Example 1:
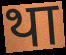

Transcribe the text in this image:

था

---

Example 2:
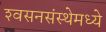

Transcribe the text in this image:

श्वसनसंस्थेमध्ये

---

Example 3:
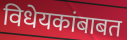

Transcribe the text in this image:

विधेयकांबाबत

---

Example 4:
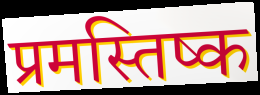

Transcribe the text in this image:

प्रमस्तिष्क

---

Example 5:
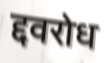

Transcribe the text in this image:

द्दवरोध